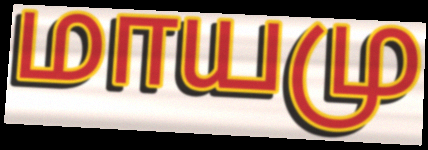
மாயமு